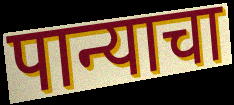
पान्याचा